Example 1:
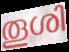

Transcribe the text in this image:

തൂശി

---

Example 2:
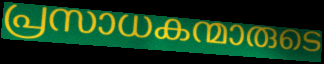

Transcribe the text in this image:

പ്രസാധകന്മാരുടെ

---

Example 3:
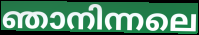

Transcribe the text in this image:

ഞാനിന്നലെ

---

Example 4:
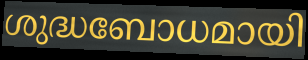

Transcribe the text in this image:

ശുദ്ധബോധമായി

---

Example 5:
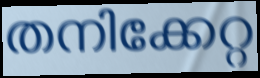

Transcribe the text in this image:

തനിക്കേറ്റ